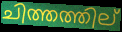
ചിത്തത്തില്